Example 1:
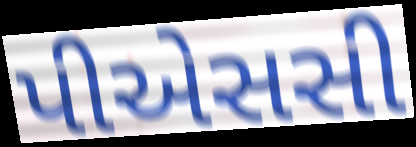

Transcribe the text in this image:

પીએસસી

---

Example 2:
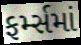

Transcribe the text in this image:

ફર્મ્સમાં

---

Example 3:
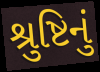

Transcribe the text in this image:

શ્રુષ્ટિનું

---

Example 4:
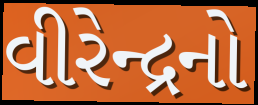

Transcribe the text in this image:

વીરેન્દ્રનો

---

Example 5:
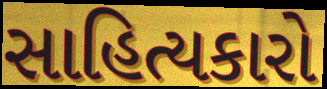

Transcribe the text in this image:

સાહિત્યકારો